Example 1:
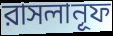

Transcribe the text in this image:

রাসলানূফ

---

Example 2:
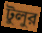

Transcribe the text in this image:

টুলুর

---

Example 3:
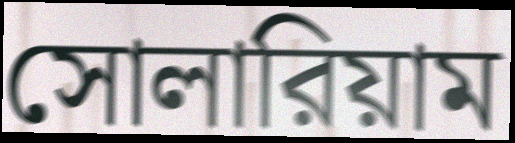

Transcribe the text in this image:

সোলারিয়াম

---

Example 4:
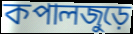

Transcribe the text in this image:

কপালজুড়ে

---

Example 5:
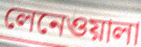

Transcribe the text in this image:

লেনেওয়ালা